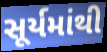
સૂર્યમાંથી